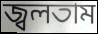
জ্বলতাম